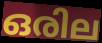
ഒരില